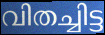
വിതച്ചിട്ട